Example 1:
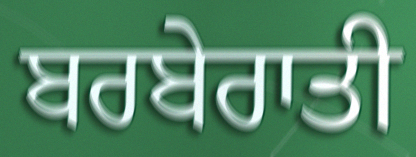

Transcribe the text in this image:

ਬਰਬੇਰਾਤੀ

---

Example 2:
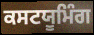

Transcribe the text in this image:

ਕਸਟਯੂਮਿੰਗ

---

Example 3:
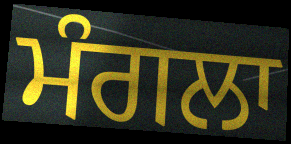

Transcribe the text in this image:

ਮੰਗਲਾ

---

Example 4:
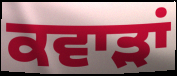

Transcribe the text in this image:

ਕਵਾੜਾਂ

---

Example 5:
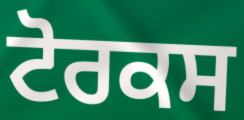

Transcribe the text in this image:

ਟੋਰਕਸ